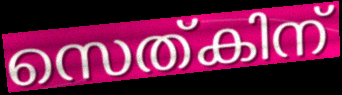
സെത്കിന്